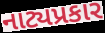
નાટ્યપ્રકાર